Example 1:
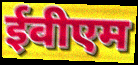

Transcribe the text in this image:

ईवीएम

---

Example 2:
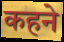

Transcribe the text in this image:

कहने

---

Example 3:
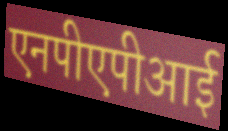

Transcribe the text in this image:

एनपीएपीआई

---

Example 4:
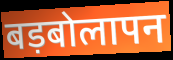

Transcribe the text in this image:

बड़बोलापन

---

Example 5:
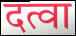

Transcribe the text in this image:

दत्वा